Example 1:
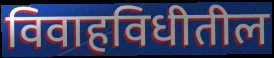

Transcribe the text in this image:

विवाहविधीतील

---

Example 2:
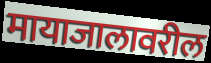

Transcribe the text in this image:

मायाजालावरील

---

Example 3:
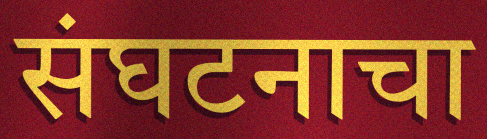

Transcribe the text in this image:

संघटनाचा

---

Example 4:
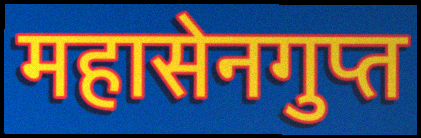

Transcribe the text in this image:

महासेनगुप्त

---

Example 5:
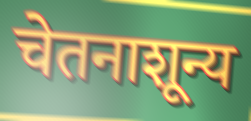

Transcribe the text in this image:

चेतनाशून्य